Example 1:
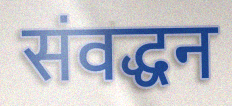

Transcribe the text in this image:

संवद्धन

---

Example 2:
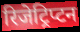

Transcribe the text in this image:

रिजेट्रिप्टन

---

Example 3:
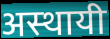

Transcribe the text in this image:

अस्थायी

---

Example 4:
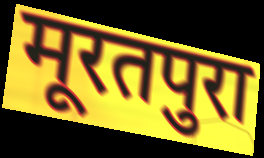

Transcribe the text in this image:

मूरतपुरा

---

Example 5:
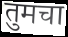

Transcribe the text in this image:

तुमचा